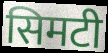
सिमटी